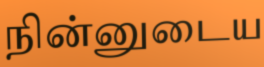
நின்னுடைய